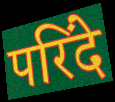
परिंदे